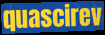
quascirev